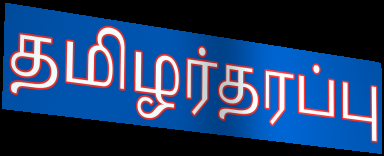
தமிழர்தரப்பு